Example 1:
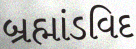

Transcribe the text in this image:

બ્રહ્માંડવિદ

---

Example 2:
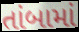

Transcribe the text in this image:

તાંબામાં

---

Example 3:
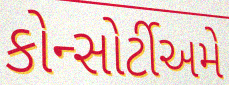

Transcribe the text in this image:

કોન્સોર્ટીઅમે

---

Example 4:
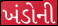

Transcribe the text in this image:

ખંડોની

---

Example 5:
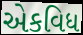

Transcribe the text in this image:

એકવિધ